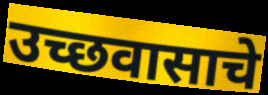
उच्छवासाचे